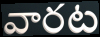
వారట